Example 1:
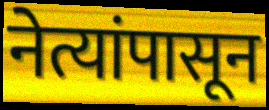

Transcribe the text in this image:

नेत्यांपासून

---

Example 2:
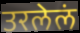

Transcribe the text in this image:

उरलेलं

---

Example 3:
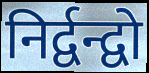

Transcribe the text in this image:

निर्द्वन्द्वो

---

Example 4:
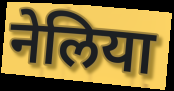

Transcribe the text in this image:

नेलिया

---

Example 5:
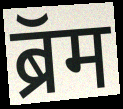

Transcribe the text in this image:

ब्रॅम